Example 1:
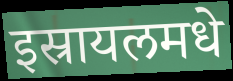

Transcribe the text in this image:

इस्रायलमधे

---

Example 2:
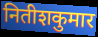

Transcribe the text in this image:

नितीशकुमार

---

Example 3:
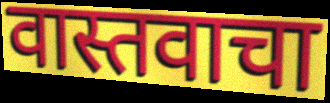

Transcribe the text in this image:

वास्तवाचा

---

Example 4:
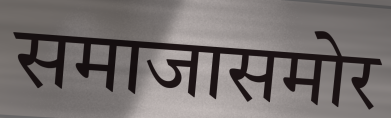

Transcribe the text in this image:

समाजासमोर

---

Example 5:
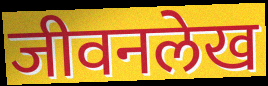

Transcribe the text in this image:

जीवनलेख